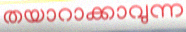
തയാറാക്കാവുന്ന